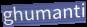
ghumanti